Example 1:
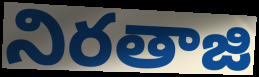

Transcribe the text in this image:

నిరతాజి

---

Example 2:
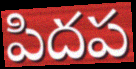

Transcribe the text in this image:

పిదప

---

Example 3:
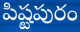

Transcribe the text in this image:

పిష్టపురం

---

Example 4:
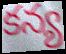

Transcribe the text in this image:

కన్య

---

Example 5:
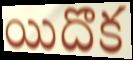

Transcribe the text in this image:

యిదొక